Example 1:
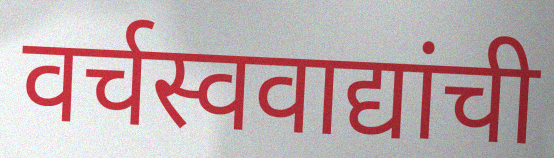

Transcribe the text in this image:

वर्चस्ववाद्यांची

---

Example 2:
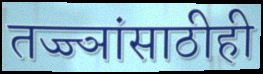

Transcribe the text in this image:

तज्ज्ञांसाठीही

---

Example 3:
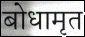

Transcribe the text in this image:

बोधामृत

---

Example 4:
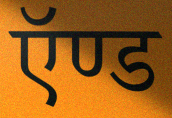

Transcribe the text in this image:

ऍण्ड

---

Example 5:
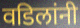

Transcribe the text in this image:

वडिलांनी